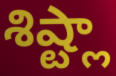
శిష్ట్లా